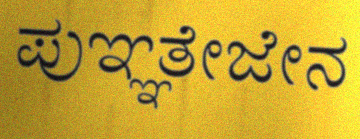
ಪುಞ್ಞತೇಜೇನ